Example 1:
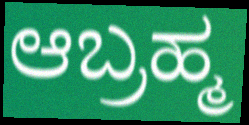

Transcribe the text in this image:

ಆಬ್ರಹ್ಮ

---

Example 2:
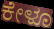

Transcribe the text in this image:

ಕೇಳೂ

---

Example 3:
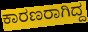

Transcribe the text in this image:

ಕಾರಣರಾಗಿದ್ದ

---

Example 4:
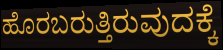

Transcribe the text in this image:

ಹೊರಬರುತ್ತಿರುವುದಕ್ಕೆ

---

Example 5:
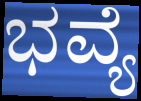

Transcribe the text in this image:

ಭವ್ಯೆ